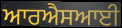
ਆਰਐਸਆਈ